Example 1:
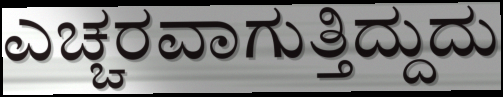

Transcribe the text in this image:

ಎಚ್ಚರವಾಗುತ್ತಿದ್ದುದು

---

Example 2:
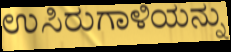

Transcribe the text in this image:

ಉಸಿರುಗಾಳಿಯನ್ನು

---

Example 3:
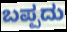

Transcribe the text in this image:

ಬಪ್ಪದು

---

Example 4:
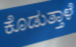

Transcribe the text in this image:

ಕೊಡುತ್ತಾಳೆ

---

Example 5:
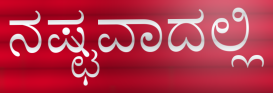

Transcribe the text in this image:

ನಷ್ಟವಾದಲ್ಲಿ